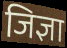
जिज्ञा